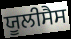
ਯੂਲੀਸੈਸ